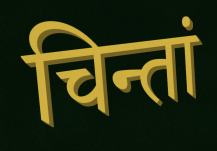
चिन्तां